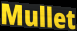
Mullet